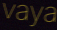
vaya